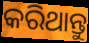
କରିଥାନ୍ତୁ